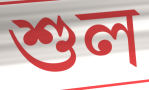
শুল